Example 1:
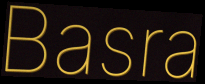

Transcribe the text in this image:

Basra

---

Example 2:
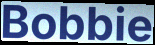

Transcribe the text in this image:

Bobbie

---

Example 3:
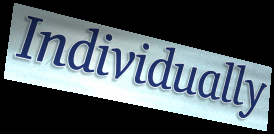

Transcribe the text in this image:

Individually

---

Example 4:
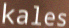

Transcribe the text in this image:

kales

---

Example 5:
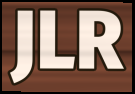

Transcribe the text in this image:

JLR